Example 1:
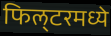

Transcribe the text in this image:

फिल्टरमध्ये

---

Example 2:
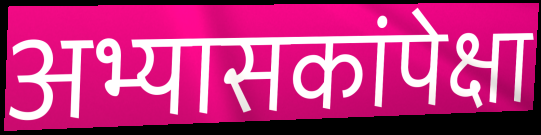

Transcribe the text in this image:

अभ्यासकांपेक्षा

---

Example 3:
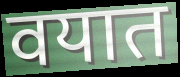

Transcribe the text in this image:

वयात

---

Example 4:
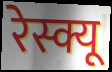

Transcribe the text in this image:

रेस्क्यू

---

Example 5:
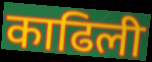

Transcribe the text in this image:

काढिली